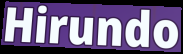
Hirundo